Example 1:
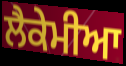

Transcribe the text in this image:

ਲੈਕੇਮੀਆ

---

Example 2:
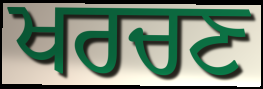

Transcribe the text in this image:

ਖਰਚਣ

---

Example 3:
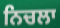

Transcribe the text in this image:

ਨਿਚਲਾ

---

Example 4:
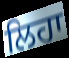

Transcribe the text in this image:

ਲਿਹਾ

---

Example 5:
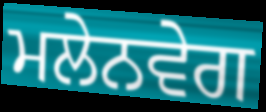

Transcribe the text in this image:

ਮਲੇਨਵੇਗ